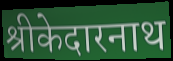
श्रीकेदारनाथ